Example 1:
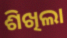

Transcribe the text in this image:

ଶିଖିଲା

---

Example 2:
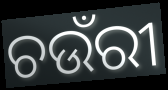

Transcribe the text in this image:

ଚଉଁରୀ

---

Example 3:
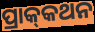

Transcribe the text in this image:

ପ୍ରାକ୍‌କଥନ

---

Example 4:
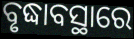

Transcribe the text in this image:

ବୃଦ୍ଧାବସ୍ଥାରେ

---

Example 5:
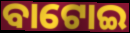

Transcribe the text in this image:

ବାଟୋଇ